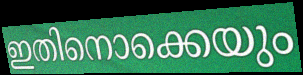
ഇതിനൊക്കെയും